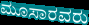
ಮೂಸಾರವರು